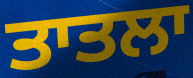
ਤਾਤਲਾ